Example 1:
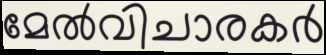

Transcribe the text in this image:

മേൽവിചാരകർ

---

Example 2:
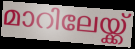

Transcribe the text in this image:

മാറിലേയ്ക്ക്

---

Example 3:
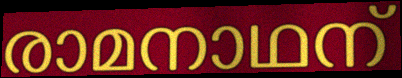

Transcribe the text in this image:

രാമനാഥന്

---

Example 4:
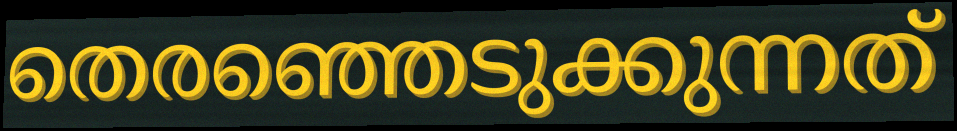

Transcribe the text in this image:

തെരഞ്ഞെടുക്കുന്നത്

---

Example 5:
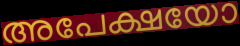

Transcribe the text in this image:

അപേക്ഷയോ